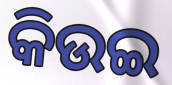
କିଉଇ